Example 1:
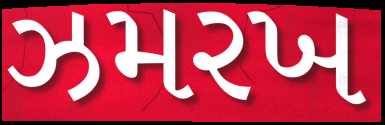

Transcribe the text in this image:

ઝમરખ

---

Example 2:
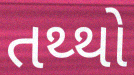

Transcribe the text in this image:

તથ્થો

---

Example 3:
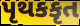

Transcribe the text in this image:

પૃથકકૃત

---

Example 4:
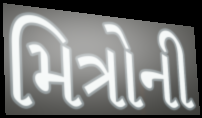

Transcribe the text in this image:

મિત્રોની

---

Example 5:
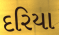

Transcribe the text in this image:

દરિયા